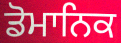
ਡੋਮਾਨਿਕ